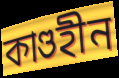
কাণ্ডহীন